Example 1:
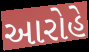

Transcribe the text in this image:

આરોહે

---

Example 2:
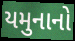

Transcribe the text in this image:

યમુનાનો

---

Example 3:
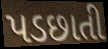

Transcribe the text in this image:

પડછાતી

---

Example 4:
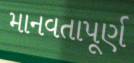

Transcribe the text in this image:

માનવતાપૂર્ણ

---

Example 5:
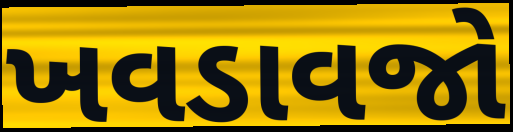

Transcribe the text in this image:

ખવડાવજો